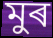
মুৰ